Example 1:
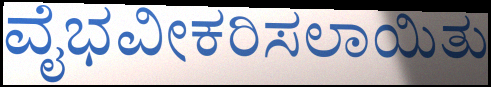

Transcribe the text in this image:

ವೈಭವೀಕರಿಸಲಾಯಿತು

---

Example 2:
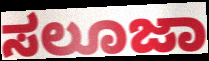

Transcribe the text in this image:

ಸಲೂಜಾ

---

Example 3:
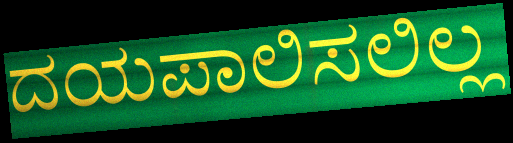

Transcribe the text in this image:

ದಯಪಾಲಿಸಲಿಲ್ಲ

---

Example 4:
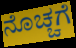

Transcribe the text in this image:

ನೊಚ್ಚಗೆ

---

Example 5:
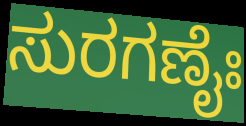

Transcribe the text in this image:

ಸುರಗಣೈಃ